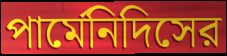
পার্মেনিদিসের